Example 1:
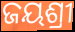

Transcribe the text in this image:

ଜୟଶ୍ରୀ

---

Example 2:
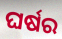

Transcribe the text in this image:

ଘର୍ଷର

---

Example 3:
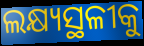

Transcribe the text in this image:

ଲକ୍ଷ୍ୟସ୍ଥଳୀକୁ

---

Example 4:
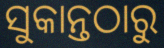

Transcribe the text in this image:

ସୁକାନ୍ତଠାରୁ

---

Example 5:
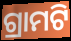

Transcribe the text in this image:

ଗ୍ରାମଟି